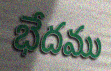
భేదము